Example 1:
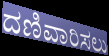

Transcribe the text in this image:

ದಣಿವಾರಿಸಲು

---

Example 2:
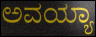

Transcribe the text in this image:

ಅವಯ್ಯಾ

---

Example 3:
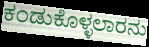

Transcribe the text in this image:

ಕಂಡುಕೊಳ್ಳಲಾರನು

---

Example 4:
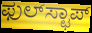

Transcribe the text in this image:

ಫುಲ್‍ಸ್ಟಾಪ್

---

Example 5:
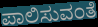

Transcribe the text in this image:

ಪಾಲಿಸುವಂತೆ